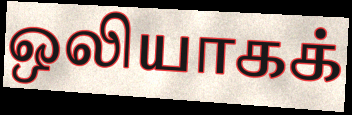
ஒலியாகக்